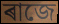
ৰাজে